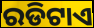
ରଡିଟାଏ